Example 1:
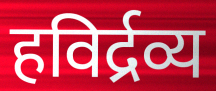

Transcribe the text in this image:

हविर्द्रव्य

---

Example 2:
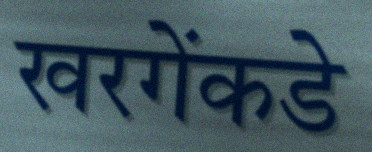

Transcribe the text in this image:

खरगेंकडे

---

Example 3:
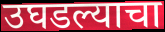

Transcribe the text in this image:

उघडल्याचा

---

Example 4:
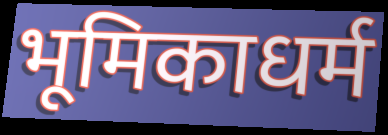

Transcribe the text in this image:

भूमिकाधर्म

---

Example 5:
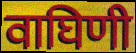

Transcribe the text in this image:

वाघिणी